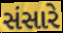
સંસારે